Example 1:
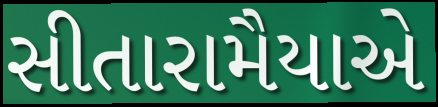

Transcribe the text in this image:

સીતારામૈયાએ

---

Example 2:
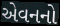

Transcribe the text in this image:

એવનનો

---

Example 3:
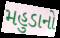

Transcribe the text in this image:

મહુડાનો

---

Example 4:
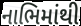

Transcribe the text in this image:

નાભિમાંથી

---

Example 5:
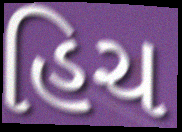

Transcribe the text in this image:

હિચ